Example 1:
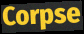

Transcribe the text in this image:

Corpse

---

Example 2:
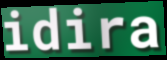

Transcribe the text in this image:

idira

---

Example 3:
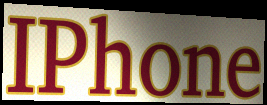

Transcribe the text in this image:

IPhone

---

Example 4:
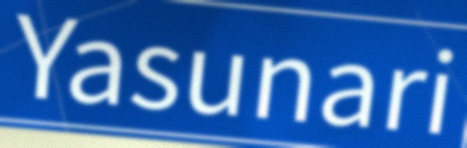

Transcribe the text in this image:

Yasunari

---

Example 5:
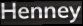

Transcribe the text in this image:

Henney